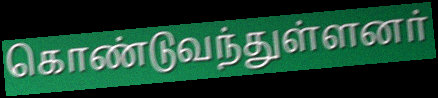
கொண்டுவந்துள்ளனர்